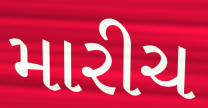
મારીચ